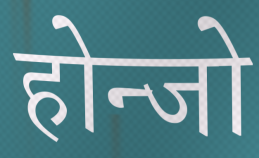
होन्जो